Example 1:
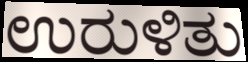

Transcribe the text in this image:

ಉರುಳಿತು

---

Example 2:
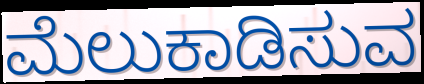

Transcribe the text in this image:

ಮೆಲುಕಾಡಿಸುವ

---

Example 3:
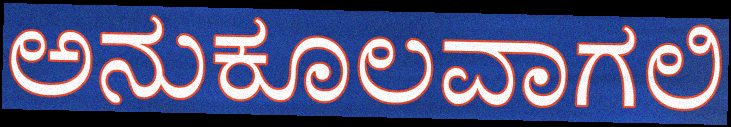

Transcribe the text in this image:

ಅನುಕೂಲವಾಗಲಿ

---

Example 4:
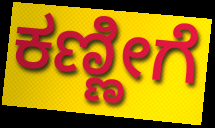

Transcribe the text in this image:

ಕಣ್ಣೀಗೆ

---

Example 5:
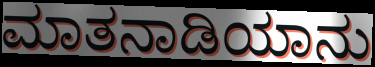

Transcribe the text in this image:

ಮಾತನಾಡಿಯಾನು